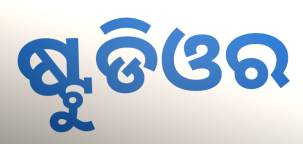
ଷ୍ଟୁଡିଓର